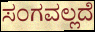
ಸಂಗವಲ್ಲದೆ